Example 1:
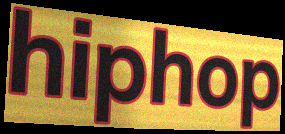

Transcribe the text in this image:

hiphop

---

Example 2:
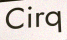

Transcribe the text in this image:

Cirq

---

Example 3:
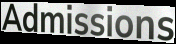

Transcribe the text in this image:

Admissions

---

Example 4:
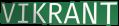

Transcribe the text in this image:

VIKRANT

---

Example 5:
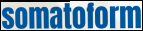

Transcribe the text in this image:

somatoform